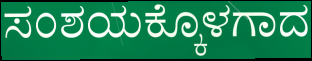
ಸಂಶಯಕ್ಕೊಳಗಾದ